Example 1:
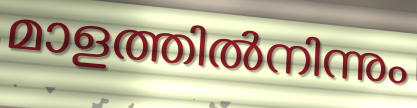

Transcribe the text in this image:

മാളത്തിൽനിന്നും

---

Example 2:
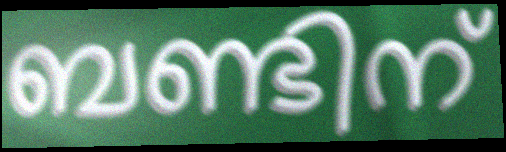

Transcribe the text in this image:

ബണ്ടിന്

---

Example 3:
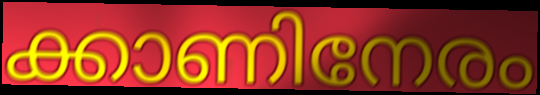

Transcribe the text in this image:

ക്കാണിനേരം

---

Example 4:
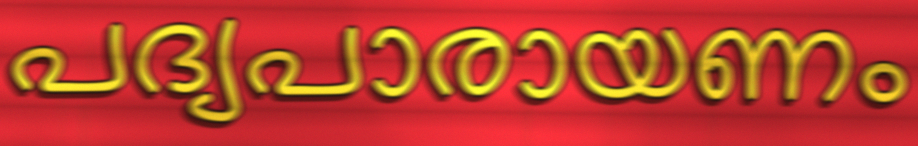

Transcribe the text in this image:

പദ്യപാരായണം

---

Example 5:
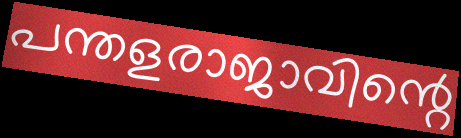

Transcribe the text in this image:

പന്തളരാജാവിന്റെ